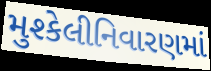
મુશ્કેલીનિવારણમાં